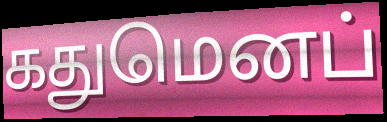
கதுமெனப்